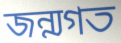
জন্মগত